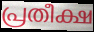
പ്രതീക്ഷ